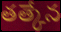
తత్కేన